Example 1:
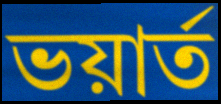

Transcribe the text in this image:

ভয়ার্ত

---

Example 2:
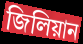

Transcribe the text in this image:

জিলিয়ান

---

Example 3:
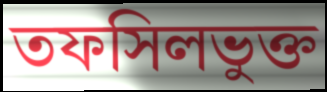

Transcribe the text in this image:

তফসিলভুক্ত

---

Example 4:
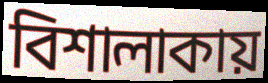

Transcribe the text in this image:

বিশালাকায়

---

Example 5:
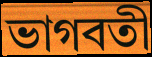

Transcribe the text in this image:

ভাগবতী